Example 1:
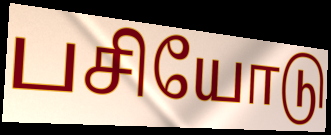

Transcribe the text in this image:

பசியோடு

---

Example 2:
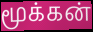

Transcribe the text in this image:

மூக்கன்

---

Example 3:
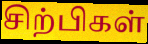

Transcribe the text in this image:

சிற்பிகள்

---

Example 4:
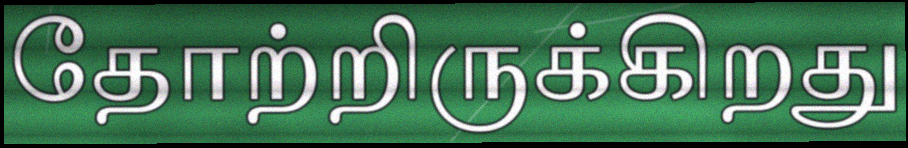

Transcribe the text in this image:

தோற்றிருக்கிறது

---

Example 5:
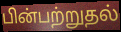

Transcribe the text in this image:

பின்பற்றுதல்